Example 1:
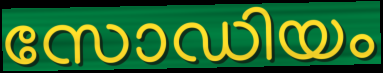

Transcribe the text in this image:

സോഡിയം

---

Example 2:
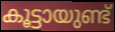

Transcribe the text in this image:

കൂട്ടായുണ്ട്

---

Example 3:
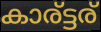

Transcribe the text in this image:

കാര്ട്ടര്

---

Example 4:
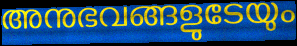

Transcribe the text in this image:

അനുഭവങ്ങളുടേയും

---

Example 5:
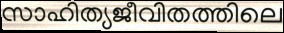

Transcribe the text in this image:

സാഹിത്യജീവിതത്തിലെ